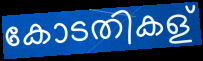
കോടതികള്